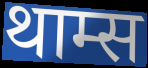
थाम्स